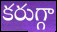
కరుగ్గా